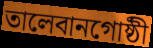
তালেবানগোষ্ঠী